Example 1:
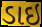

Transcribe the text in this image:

ડાઇ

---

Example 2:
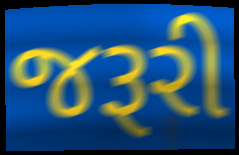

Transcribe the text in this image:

જરૂરી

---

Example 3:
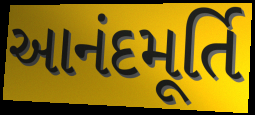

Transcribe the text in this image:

આનંદમૂર્તિ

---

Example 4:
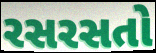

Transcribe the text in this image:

રસરસતો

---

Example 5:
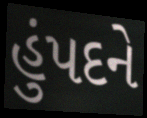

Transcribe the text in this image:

હુંપદને